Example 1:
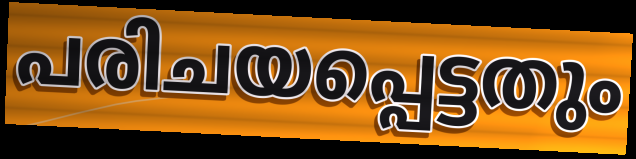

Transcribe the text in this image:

പരിചയപ്പെട്ടതും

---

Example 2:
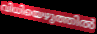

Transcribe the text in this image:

വിധിയെഴുത്തിൽ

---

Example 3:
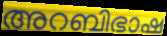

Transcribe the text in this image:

അറബിഭാഷ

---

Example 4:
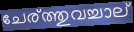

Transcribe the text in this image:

ചേര്ത്തുവച്ചാല്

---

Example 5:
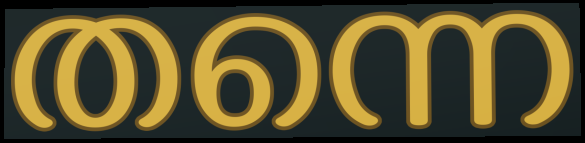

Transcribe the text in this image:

തന്നെ